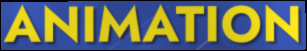
ANIMATION